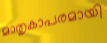
മാതൃകാപരമായി